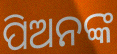
ପିଅନଙ୍କ